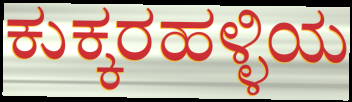
ಕುಕ್ಕರಹಳ್ಳಿಯ